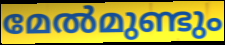
മേൽമുണ്ടും